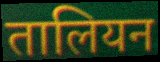
तालियन